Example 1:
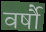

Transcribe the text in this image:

वर्षौ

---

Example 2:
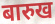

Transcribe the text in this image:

बारुख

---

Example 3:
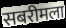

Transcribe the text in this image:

सबरीमला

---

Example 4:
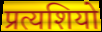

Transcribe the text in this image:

प्रत्यशियो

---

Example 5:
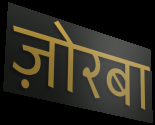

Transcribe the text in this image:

ज़ोरबा